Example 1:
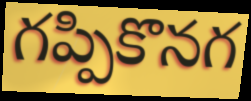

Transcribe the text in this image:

గప్పికొనగ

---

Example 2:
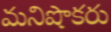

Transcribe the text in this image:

మనిషొకరు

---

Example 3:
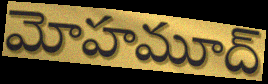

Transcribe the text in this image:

మోహమూద్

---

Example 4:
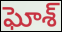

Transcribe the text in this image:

ఘోశ్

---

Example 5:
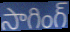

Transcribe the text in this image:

సాగింగ్